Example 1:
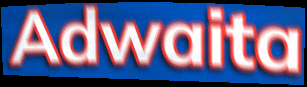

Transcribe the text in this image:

Adwaita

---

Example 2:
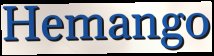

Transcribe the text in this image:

Hemango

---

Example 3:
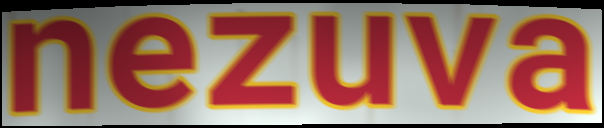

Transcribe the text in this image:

nezuva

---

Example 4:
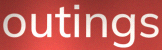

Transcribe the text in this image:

outings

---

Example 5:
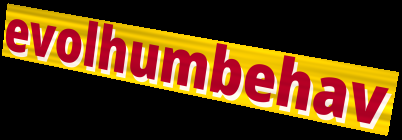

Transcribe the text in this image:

evolhumbehav